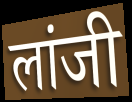
लांजी